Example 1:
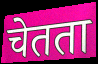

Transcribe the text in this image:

चेतता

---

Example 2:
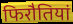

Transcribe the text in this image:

फिरौतियां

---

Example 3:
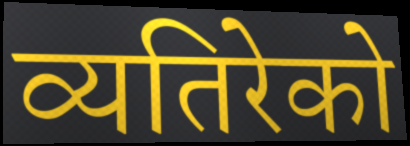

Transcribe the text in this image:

व्यतिरेको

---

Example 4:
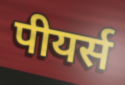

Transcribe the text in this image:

पीयर्स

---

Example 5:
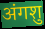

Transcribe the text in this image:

अंगशु